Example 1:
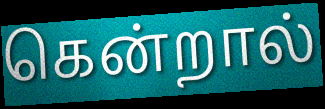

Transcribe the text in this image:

கென்றால்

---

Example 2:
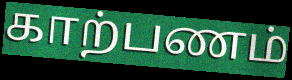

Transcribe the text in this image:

காற்பணம்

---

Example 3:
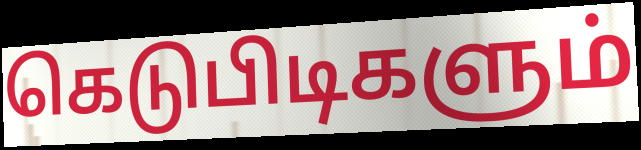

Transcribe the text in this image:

கெடுபிடிகளும்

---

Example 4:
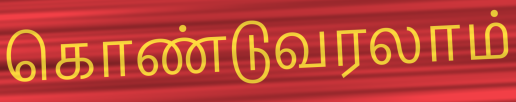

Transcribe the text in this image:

கொண்டுவரலாம்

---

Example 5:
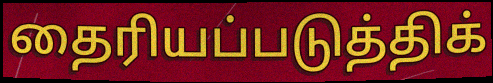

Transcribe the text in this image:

தைரியப்படுத்திக்